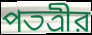
পতত্রীর